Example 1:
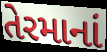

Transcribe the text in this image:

તેરમાનાં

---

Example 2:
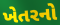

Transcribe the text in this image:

ખેતરનો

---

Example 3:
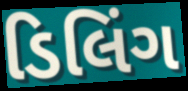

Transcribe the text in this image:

ડિલિંગ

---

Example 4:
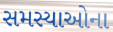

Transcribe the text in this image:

સમસ્યાઓના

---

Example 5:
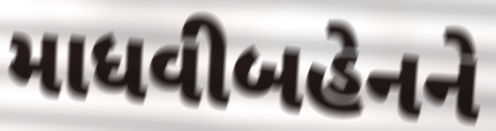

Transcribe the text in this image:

માધવીબહેનને